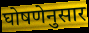
घोषणेनुसार